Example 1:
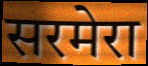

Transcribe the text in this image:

सरमेरा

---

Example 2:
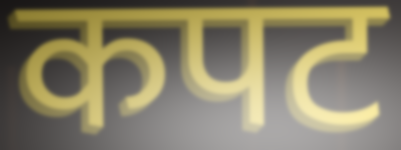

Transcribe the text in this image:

कपट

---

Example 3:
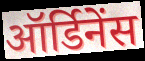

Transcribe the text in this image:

ऑर्डिनेंस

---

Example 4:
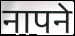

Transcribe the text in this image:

नापने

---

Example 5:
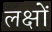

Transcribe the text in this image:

लक्षों